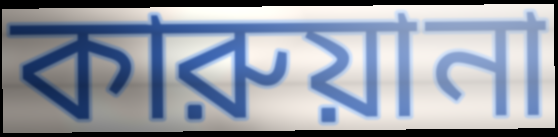
কারুয়ানা